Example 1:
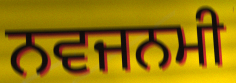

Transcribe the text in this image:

ਨਵਜਨਮੀ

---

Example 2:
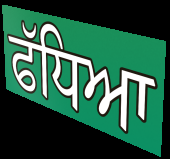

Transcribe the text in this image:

ਫੱਧਿਆ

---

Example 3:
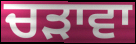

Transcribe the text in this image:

ਚੜਾਵਾ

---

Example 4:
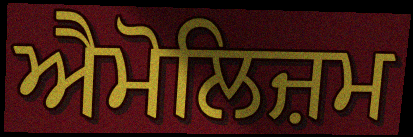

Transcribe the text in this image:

ਐਮੋਲਿਜ਼ਮ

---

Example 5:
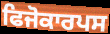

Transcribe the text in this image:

ਫਿਜੋਕਾਰਪਸ